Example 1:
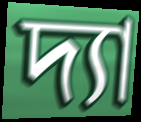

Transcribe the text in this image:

দ্যা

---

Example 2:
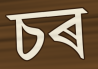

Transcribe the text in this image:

চৰ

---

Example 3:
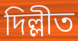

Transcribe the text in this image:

দিল্লীত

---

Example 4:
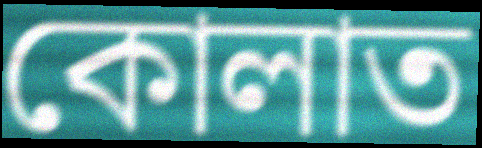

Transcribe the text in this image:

কোলাত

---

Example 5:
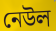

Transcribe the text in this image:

নেউল